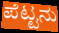
ಪೆಟ್ಟನು